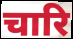
चारि